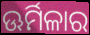
ଊର୍ମିଳାର